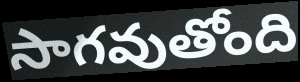
సాగవుతోంది